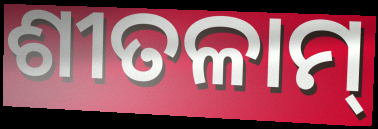
ଶୀତଳାମ୍